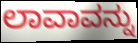
ಲಾವಾವನ್ನು